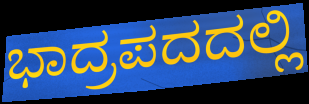
ಭಾದ್ರಪದದಲ್ಲಿ